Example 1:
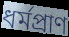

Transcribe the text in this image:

ধৰ্মপ্ৰাণ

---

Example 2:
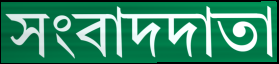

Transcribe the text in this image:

সংবাদদাতা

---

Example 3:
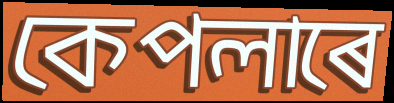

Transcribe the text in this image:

কেপলাৰে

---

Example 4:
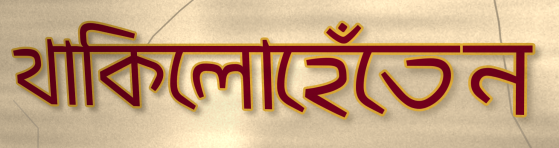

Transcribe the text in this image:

থাকিলোহেঁতেন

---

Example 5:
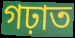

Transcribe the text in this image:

গঢ়াত